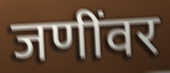
जणींवर